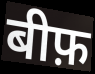
बीफ़